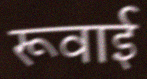
रूवाई